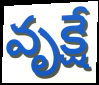
వృక్షే